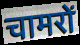
चामरों